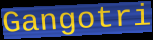
Gangotri